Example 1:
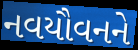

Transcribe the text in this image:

નવયૌવનને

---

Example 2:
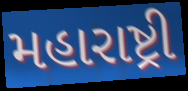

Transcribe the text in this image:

મહારાષ્ટ્રી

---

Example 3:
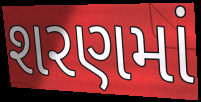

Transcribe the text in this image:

શરણમાં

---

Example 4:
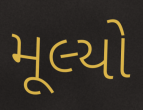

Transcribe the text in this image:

મૂલ્યો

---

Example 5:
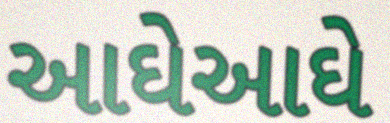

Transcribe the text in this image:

આઘેઆઘે